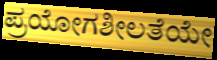
ಪ್ರಯೋಗಶೀಲತೆಯೇ